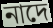
নাদে